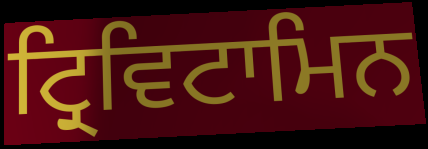
ਟ੍ਰਿਵਿਟਾਮਿਨ